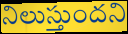
నిలుస్తుందని